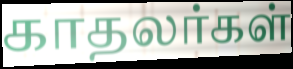
காதலர்கள்